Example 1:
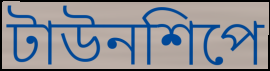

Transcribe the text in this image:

টাউনশিপে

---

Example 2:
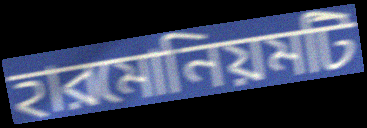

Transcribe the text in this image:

হারমোনিয়মটি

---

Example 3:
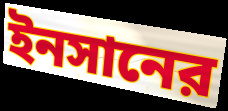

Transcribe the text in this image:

ইনসানের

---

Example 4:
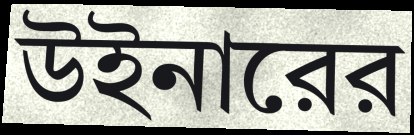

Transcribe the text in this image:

উইনারের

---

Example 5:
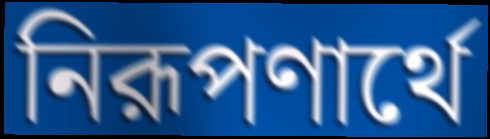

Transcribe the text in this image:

নিরূপণার্থে